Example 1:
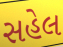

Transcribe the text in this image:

સહેલ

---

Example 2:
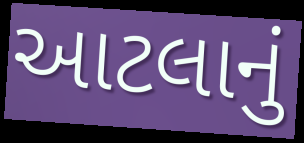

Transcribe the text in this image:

આટલાનું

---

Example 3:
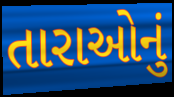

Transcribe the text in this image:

તારાઓનું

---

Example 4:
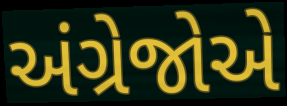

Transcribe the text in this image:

અંગ્રેજોએ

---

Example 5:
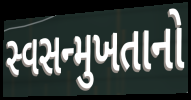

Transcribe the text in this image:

સ્વસન્મુખતાનો